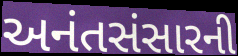
અનંતસંસારની